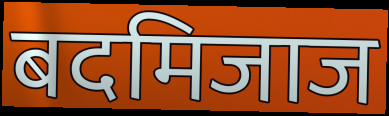
बदमिजाज